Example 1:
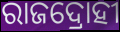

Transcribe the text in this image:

ରାଜଦ୍ରୋହୀ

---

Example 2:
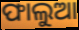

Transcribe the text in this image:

ଫାଲୁଆ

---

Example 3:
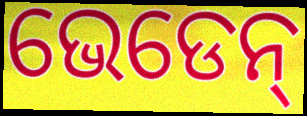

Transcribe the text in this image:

ଭେଡେନ୍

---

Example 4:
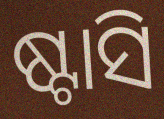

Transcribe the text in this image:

ଷ୍ଟାସି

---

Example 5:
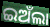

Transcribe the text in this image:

ଇଅଁଲା